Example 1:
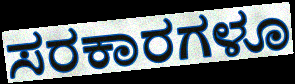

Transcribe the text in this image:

ಸರಕಾರಗಳೂ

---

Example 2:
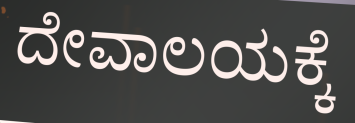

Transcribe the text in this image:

ದೇವಾಲಯಕ್ಕೆ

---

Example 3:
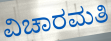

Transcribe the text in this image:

ವಿಚಾರಮತಿ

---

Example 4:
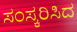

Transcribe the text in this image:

ಸಂಸ್ಕರಿಸಿದ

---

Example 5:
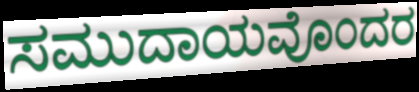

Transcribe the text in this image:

ಸಮುದಾಯವೊಂದರ